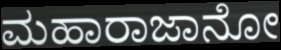
ಮಹಾರಾಜಾನೋ